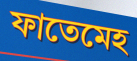
ফাতেমেহ